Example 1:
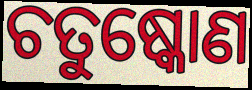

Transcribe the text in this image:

ଚତୁଷ୍କୋଣ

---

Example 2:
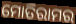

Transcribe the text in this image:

ମୋତିରାମର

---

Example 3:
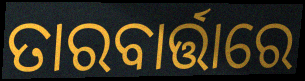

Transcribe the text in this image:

ତାରବାର୍ତ୍ତାରେ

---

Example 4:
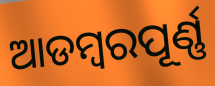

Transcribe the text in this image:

ଆଡମ୍ବରପୂର୍ଣ୍ଣ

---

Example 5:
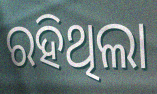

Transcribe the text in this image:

ରହିଥିଲା